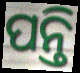
ପନ୍ତି